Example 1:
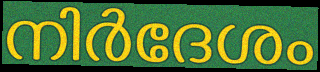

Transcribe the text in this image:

നിർദേശം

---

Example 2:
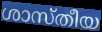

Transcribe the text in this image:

ശാസ്തീയ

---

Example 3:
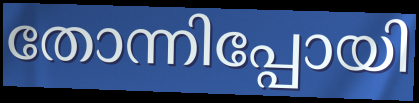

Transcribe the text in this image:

തോന്നിപ്പോയി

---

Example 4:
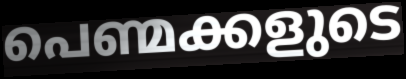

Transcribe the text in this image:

പെണ്മക്കളുടെ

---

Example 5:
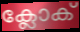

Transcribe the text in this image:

ക്ലോക്